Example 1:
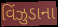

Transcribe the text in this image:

વિંઝુડાના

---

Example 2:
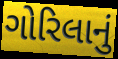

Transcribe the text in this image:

ગોરિલાનું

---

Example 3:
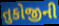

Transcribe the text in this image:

તુકોજીની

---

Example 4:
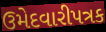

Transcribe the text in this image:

ઉમેદવારીપત્રક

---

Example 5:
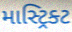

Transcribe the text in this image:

માસ્ટ્રિક્ટ